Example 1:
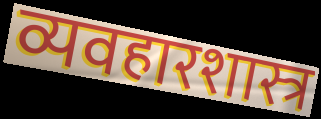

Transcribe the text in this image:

व्यवहारशास्त्र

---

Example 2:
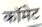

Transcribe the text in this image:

कॉमेट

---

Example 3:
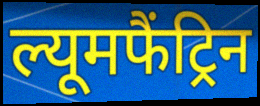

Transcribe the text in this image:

ल्यूमफैंट्रिन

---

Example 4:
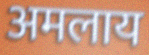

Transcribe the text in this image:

अमलाय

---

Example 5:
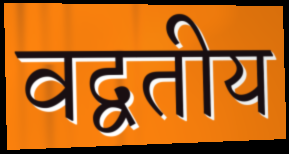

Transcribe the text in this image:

वद्वतीय